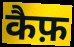
कैफ़